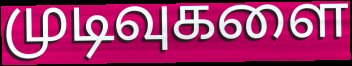
முடிவுகளை